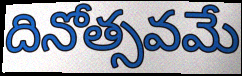
దినోత్సవమే